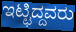
ಇಟ್ಟಿದ್ದವರು